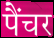
पैंचर